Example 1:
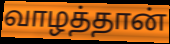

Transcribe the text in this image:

வாழத்தான்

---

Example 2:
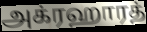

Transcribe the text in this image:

அக்ரஹாரத்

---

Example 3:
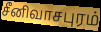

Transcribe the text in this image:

சீனிவாசபுரம்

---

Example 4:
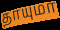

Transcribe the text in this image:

தாயுமா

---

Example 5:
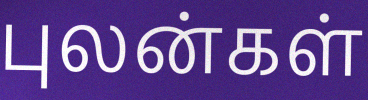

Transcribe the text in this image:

புலன்கள்